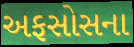
અફસોસના